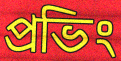
প্রভিং